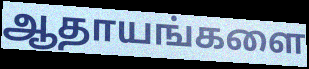
ஆதாயங்களை